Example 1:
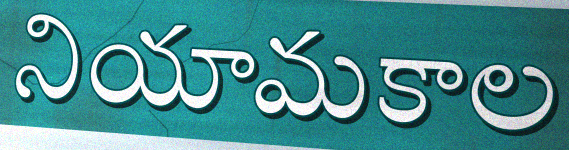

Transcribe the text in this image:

నియామకాల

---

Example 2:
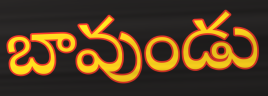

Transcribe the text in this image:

బావుండు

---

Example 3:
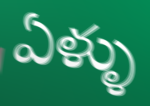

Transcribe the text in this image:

ఏళ్ళు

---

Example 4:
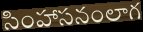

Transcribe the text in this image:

సింహాసనంలాగ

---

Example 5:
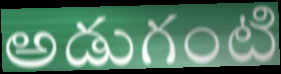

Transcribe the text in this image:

అడుగంటి